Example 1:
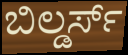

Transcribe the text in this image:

ಬಿಲ್ಡರ್ಸ್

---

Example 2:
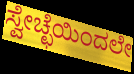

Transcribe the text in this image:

ಸ್ವೇಚ್ಛೆಯಿಂದಲೇ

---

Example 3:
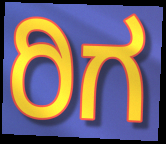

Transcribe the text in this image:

ರಿಗ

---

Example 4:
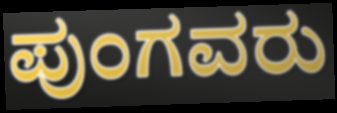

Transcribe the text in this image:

ಪುಂಗವರು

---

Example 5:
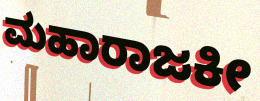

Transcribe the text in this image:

ಮಹಾರಾಜಕೀ